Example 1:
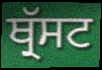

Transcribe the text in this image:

ਥ੍ਰੱਸਟ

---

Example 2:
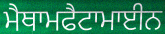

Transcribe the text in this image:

ਮੈਥਾਮਫੈਟਾਮਾਈਨ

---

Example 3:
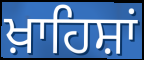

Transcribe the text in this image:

ਖ਼ਾਹਿਸ਼ਾਂ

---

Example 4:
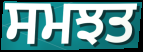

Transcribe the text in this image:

ਸਮਝਤ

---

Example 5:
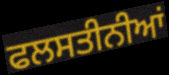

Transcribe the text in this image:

ਫਲਸਤੀਨੀਆਂ